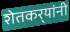
शेतकर्‍यांनी